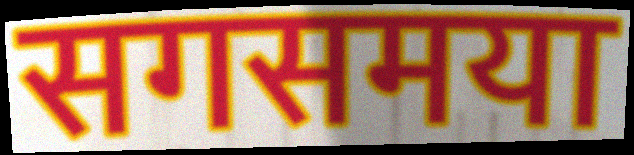
सगसमया